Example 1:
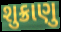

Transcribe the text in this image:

શુક્રાણુ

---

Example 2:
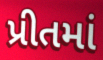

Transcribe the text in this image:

પ્રીતમાં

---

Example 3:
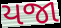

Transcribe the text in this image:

યજા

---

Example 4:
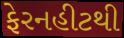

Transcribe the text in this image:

ફેરનહીટથી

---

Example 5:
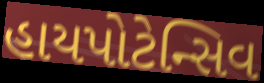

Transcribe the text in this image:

હાયપોટેન્સિવ